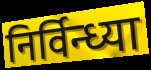
निर्विन्ध्या